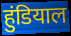
हुंडियाल